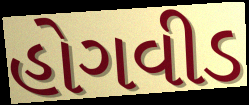
હોગવીડ